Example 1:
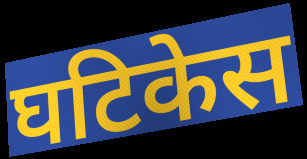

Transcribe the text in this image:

घटिकेस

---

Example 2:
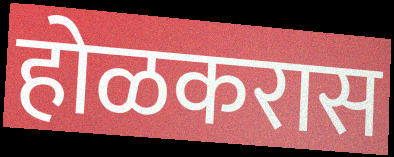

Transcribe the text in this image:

होळकरास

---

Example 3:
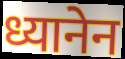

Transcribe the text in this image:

ध्यानेन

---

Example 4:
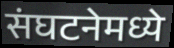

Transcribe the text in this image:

संघटनेमध्ये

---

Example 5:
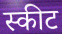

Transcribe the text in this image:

स्कीट